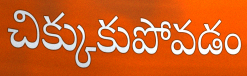
చిక్కుకుపోవడం